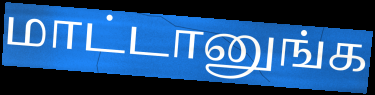
மாட்டானுங்க